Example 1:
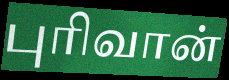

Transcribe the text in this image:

புரிவான்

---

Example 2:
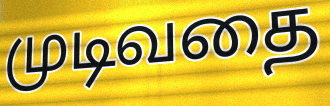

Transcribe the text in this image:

முடிவதை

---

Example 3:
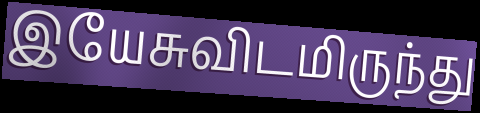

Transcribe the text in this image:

இயேசுவிடமிருந்து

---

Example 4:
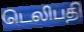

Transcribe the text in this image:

டெலிபதி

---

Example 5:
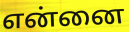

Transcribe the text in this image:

என்னை